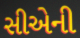
સીએની